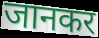
जानकर